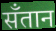
सँतान